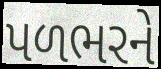
પળભરને